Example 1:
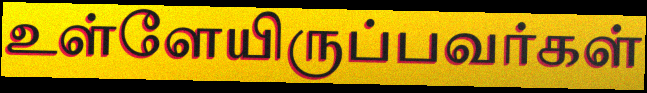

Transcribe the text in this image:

உள்ளேயிருப்பவர்கள்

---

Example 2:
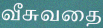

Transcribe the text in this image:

வீசுவதை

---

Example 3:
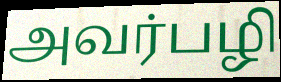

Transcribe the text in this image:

அவர்பழி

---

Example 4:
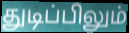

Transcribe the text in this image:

துடிப்பிலும்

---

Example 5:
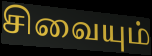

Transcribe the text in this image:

சிவையும்